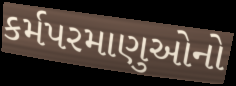
કર્મપરમાણુઓનો